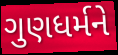
ગુણધર્મને